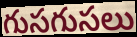
గుసగుసలు